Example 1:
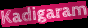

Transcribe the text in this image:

Kadigaram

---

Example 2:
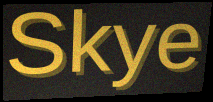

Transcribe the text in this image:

Skye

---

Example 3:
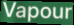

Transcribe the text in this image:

Vapour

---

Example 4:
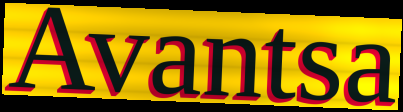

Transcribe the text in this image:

Avantsa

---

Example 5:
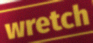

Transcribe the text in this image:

wretch